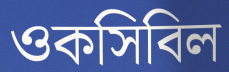
ওকসিবিল